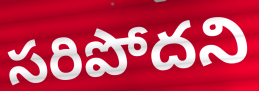
సరిపోదని